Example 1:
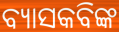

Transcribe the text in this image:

ବ୍ୟାସକବିଙ୍କ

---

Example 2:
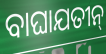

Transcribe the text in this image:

ବାଘାଯତୀନ୍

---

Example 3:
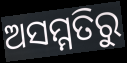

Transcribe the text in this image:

ଅସମ୍ମତିରୁ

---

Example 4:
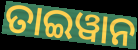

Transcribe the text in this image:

ତାଇୱାନ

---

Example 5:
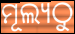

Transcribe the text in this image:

ମୂଲ୍ୟଠୁ